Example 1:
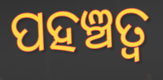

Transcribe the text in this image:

ପହଞ୍ଚତ୍ବ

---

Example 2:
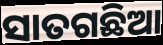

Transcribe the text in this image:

ସାତଗଛିଆ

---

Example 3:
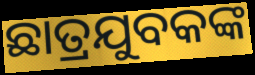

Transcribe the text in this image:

ଛାତ୍ରଯୁବକଙ୍କ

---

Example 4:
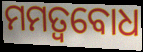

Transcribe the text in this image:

ମମତ୍ବବୋଧ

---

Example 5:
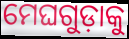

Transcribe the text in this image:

ମେଘଗୁଡ଼ାକୁ